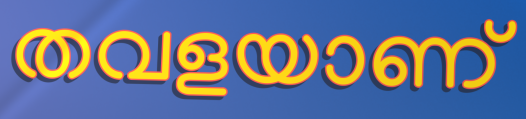
തവളയാണ്